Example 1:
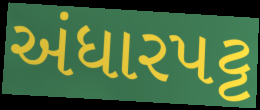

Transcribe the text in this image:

અંધારપટ્ટ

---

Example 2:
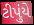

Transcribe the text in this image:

ટીપુંયે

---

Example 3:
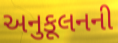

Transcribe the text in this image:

અનુકૂલનની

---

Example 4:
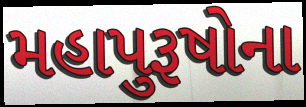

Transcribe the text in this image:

મહાપુરૂષોના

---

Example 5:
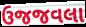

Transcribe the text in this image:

ઉજજવલા